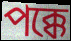
পক্কে